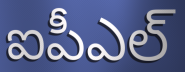
ఐపీఎల్